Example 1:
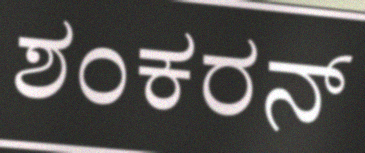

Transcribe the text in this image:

ಶಂಕರನ್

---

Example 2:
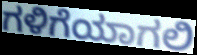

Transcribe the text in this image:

ಗಳಿಗೆಯಾಗಲಿ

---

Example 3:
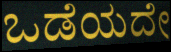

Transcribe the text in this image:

ಒಡೆಯದೇ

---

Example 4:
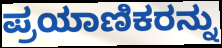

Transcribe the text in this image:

ಪ್ರಯಾಣಿಕರನ್ನು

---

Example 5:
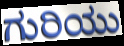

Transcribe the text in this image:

ಗುರಿಯು